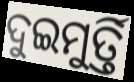
ଦୁଇମୁର୍ତ୍ତି